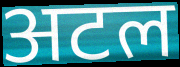
अटल